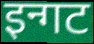
इन्गट